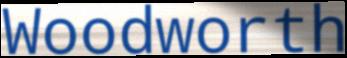
Woodworth